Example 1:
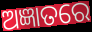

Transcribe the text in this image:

ଅଜ୍ଞାତରେ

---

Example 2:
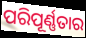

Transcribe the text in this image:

ପରିପୂର୍ଣ୍ଣତାର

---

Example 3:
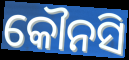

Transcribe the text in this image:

କୌନସି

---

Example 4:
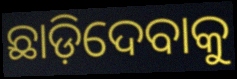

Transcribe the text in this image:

ଛାଡ଼ିଦେବାକୁ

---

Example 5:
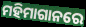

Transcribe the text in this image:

ମହିମାଗାନରେ